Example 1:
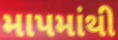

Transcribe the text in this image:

માપમાંથી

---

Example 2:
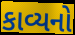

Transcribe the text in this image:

કાવ્યનો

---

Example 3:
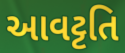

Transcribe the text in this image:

આવટ્ટતિ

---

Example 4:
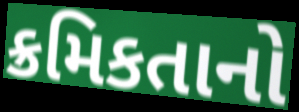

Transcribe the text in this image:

ક્રમિકતાનો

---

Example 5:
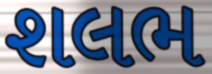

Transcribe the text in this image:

શલભ